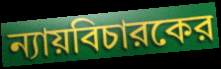
ন্যায়বিচারকের